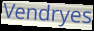
Vendryes